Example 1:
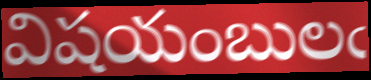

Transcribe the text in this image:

విషయంబులఁ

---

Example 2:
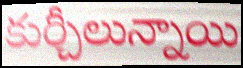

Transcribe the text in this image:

కుర్చీలున్నాయి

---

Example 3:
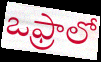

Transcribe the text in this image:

ఒఫ్రాలో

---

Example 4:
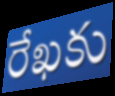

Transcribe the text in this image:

రేఖకు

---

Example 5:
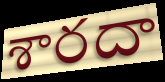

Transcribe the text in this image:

శారదా